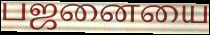
பஜனையை